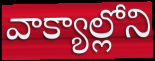
వాక్యాల్లోని